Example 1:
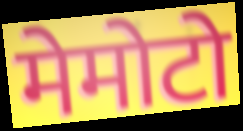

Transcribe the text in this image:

मेमोटो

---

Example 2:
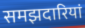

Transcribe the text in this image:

समझदारियां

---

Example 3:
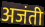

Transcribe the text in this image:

अजंती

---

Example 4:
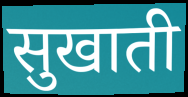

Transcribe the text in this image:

सुखाती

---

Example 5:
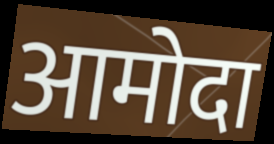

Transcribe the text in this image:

आमोदा